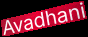
Avadhani